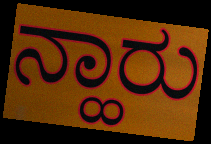
ನ್ಹಾರು